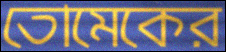
তোমেকের